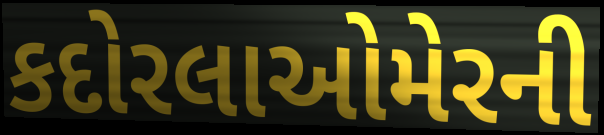
કદોરલાઓમેરની